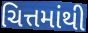
ચિત્તમાંથી